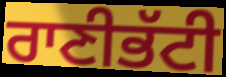
ਰਾਣੀਭੱਟੀ